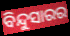
ବିନ୍ଦୁସାରର